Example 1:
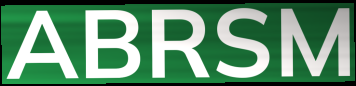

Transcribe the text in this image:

ABRSM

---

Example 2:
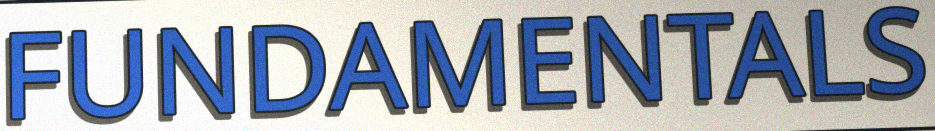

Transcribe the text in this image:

FUNDAMENTALS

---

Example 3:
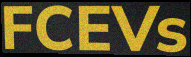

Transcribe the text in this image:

FCEVs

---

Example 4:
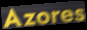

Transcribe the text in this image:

Azores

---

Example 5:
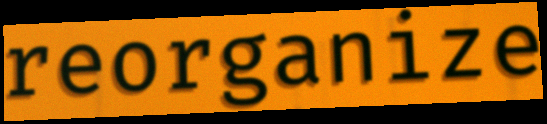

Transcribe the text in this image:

reorganize